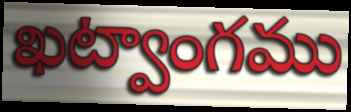
ఖట్వాంగము